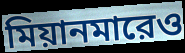
মিয়ানমারেও